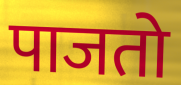
पाजतो